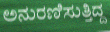
ಅನುರಣಿಸುತ್ತಿದ್ದ